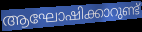
ആഘോഷിക്കാറുണ്ട്